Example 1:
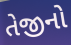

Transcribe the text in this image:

તેજીનો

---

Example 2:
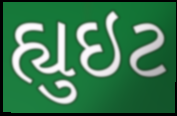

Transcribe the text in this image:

હ્યુઇટ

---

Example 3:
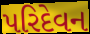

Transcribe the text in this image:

પરિદેવન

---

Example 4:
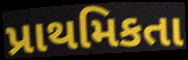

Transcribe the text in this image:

પ્રાથમિકતા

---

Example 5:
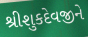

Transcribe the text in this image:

શ્રીશુકદેવજીને